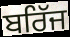
ਬਰਿੱਜ